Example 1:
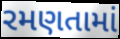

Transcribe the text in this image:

રમણતામાં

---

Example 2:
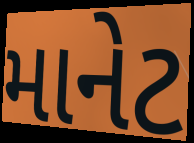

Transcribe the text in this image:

માનેટ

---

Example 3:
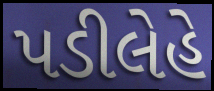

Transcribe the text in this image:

પડીલેહે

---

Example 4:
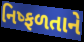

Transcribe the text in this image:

નિષ્ફળતાને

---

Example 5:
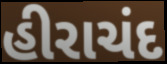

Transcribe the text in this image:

હીરાચંદ